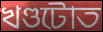
খণ্ডটোত